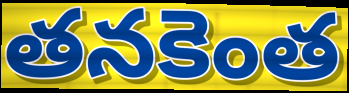
తనకెంత